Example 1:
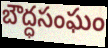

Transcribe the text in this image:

బౌద్ధసంఘం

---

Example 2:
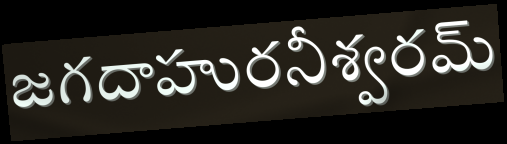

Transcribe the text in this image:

జగదాహురనీశ్వరమ్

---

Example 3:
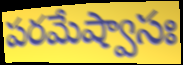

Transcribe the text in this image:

పరమేష్వాసః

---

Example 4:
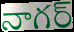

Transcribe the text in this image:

నాగర్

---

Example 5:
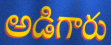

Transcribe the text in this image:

అడిగారు